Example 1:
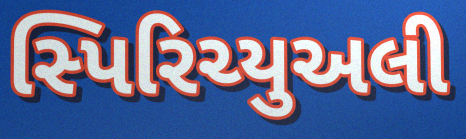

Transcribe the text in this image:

સ્પિરિચ્યુઅલી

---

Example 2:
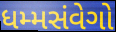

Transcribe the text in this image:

ધમ્મસંવેગો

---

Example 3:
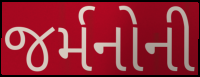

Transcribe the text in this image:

જર્મનોની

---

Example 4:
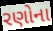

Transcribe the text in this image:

રણોના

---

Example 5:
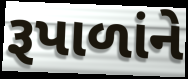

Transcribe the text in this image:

રૂપાળાંને